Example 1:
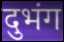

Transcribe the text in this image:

दुभंग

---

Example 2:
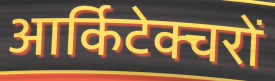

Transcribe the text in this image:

आर्किटेक्चरों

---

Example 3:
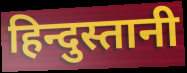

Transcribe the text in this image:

हिन्दुस्तानी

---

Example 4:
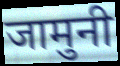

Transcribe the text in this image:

जामुनी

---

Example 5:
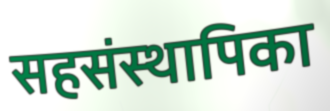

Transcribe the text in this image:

सहसंस्थापिका